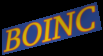
BOINC